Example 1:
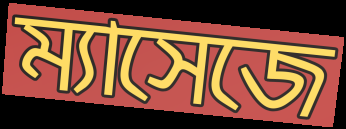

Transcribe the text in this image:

ম্যাসেজে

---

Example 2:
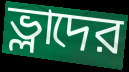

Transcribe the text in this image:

ভ্লাদের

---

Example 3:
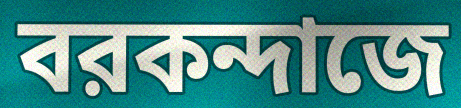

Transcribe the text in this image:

বরকন্দাজে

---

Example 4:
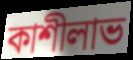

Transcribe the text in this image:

কাশীলাভ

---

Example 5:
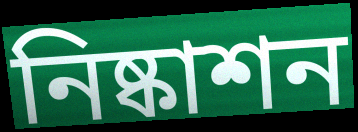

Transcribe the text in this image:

নিষ্কাশন